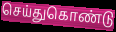
செய்துகொண்டு